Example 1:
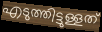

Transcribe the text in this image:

എടുത്തിട്ടുള്ളത്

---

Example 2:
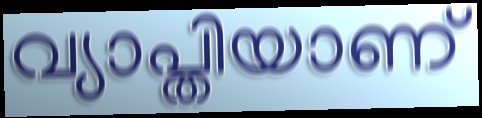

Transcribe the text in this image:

വ്യാപ്തിയാണ്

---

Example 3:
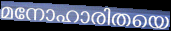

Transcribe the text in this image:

മനോഹാരിതയെ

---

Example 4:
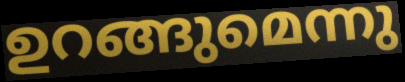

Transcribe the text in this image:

ഉറങ്ങുമെന്നു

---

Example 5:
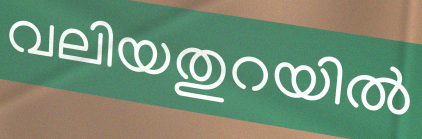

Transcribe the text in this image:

വലിയതുറയിൽ